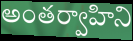
అంతర్వాహిని